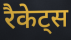
रैकेट्स